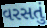
વરસતું